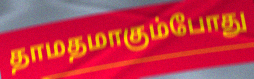
தாமதமாகும்போது